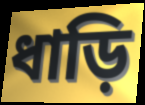
ধাড়ি